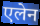
एलेन